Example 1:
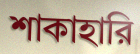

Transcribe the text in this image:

শাকাহারি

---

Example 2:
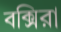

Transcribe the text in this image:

বক্সিরা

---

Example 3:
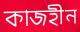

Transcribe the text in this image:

কাজহীন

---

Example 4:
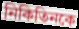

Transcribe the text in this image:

নিকিতিনকে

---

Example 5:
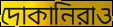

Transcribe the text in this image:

দোকানিরাও